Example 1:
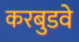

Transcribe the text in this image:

करबुडवे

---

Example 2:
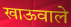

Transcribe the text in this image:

खाऊवाले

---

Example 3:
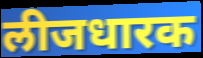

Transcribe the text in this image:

लीजधारक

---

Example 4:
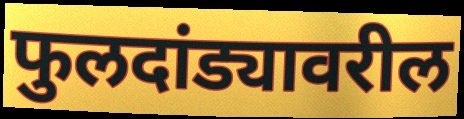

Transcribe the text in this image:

फुलदांड्यावरील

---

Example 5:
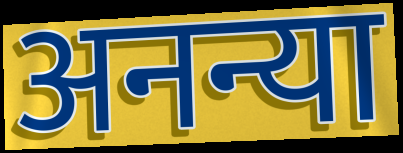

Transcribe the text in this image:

अनन्या